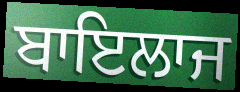
ਬਾਇਲਾਜ